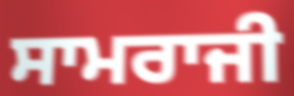
ਸਾਮਰਾਜੀ